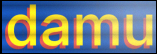
damu